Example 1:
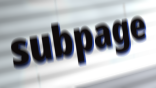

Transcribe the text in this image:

subpage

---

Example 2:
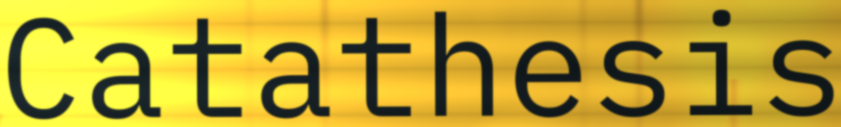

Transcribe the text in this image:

Catathesis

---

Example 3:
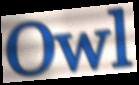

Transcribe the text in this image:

Owl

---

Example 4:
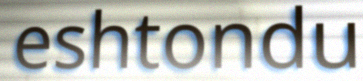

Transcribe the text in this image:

eshtondu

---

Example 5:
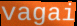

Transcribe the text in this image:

vagai